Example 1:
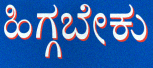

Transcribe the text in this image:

ಹಿಗ್ಗಬೇಕು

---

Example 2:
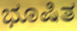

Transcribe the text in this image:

ಭೂಷಿತ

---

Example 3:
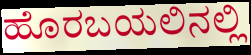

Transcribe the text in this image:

ಹೊರಬಯಲಿನಲ್ಲಿ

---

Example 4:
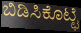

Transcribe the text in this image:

ಬಿಡಿಸಿಕೊಟ್ಟೆ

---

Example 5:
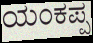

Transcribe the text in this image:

ಯಂಕಪ್ಪ